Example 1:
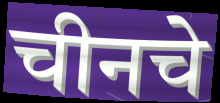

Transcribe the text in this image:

चीनचे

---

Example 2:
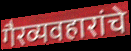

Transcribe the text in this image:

गैरव्यवहारांचे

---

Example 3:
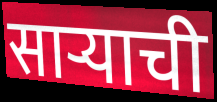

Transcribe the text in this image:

सार्‍याची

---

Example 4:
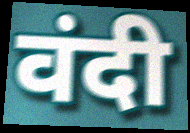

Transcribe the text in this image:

वंदी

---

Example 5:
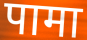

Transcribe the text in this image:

पामा